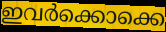
ഇവർക്കൊക്കെ